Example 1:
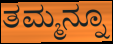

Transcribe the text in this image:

ತಮ್ಮನ್ನೂ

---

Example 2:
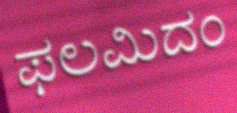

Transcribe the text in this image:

ಫಲಮಿದಂ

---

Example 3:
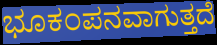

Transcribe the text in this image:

ಭೂಕಂಪನವಾಗುತ್ತದೆ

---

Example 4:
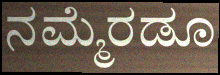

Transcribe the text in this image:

ನಮ್ಮೆರಡೂ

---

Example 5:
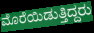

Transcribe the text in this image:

ಮೊರೆಯಿಡುತ್ತಿದ್ದರು